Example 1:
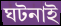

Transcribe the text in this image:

ঘটনাই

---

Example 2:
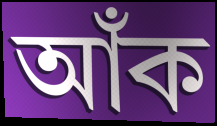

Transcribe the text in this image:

আঁক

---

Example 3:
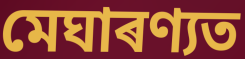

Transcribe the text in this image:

মেঘাৰণ্যত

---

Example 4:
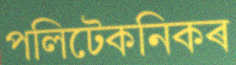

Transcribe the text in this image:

পলিটেকনিকৰ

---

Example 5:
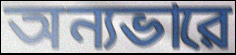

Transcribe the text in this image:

অন্যভাৱে